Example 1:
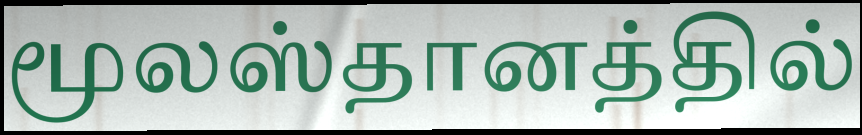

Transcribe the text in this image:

மூலஸ்தானத்தில்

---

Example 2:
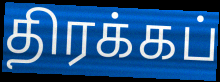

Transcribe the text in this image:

திரக்கப்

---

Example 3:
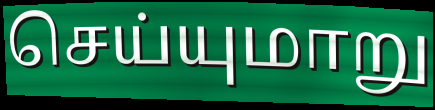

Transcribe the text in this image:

செய்யுமாறு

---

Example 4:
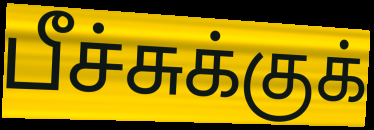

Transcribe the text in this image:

பீச்சுக்குக்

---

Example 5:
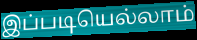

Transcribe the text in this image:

இப்படியெல்லாம்